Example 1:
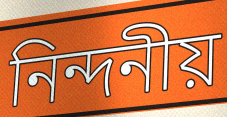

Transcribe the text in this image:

নিন্দনীয়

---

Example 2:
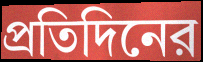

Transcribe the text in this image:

প্রতিদিনের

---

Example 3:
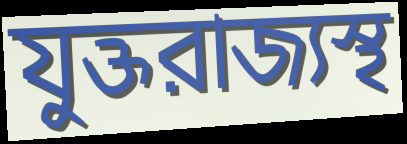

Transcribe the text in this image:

যুক্তরাজ্যস্থ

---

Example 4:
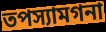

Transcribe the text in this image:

তপস্যামগনা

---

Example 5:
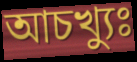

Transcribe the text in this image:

আচখ্যুঃ